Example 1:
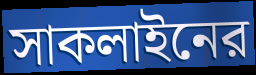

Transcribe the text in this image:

সাকলাইনের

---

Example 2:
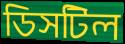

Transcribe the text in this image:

ডিসটিল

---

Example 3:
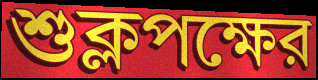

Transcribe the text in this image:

শুক্লপক্ষের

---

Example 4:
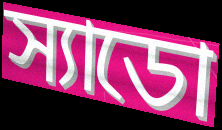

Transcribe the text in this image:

স্যাডো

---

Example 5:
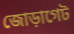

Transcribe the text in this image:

জোড়াগেট